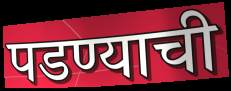
पडण्याची